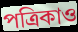
পত্রিকাও